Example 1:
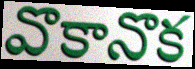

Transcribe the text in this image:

వొకానొక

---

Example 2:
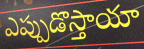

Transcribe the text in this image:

ఎప్పుడొస్తాయా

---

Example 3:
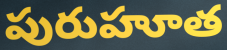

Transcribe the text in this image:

పురుహూత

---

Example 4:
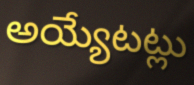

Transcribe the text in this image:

అయ్యేటట్లు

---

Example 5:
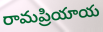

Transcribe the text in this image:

రామప్రియాయ